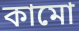
কামো